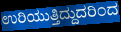
ಉರಿಯುತ್ತಿದ್ದುದರಿಂದ